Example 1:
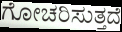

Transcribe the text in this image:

ಗೋಚರಿಸುತ್ತದೆ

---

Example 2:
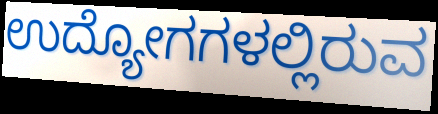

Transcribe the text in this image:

ಉದ್ಯೋಗಗಳಲ್ಲಿರುವ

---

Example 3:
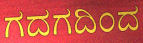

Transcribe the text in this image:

ಗದಗದಿಂದ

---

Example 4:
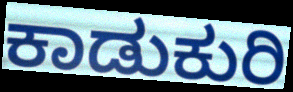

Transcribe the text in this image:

ಕಾಡುಕುರಿ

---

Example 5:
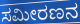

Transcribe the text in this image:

ಸಮೀರಣನ